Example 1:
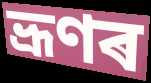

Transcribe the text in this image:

ভ্ৰূণৰ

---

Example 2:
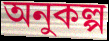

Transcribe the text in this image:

অনুকল্প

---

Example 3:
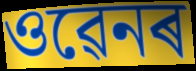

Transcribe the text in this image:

ওৱেনৰ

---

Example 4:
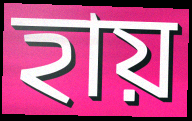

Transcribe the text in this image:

হায়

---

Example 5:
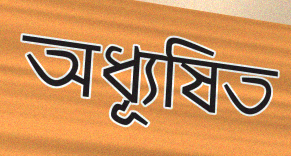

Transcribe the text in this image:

অধ্যূষিত